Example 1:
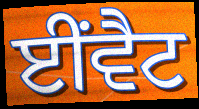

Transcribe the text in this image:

ਈਂਵੈਟ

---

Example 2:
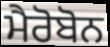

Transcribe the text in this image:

ਮੈਰੋਬੋਨ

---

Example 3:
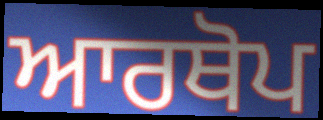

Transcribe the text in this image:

ਆਰਥੋਪ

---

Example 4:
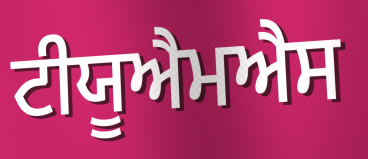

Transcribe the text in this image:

ਟੀਯੂਐਮਐਸ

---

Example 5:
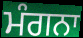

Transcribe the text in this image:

ਮੰਗਨਾ